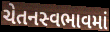
ચેતનસ્વભાવમાં